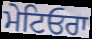
ਮੇਟਿਓਰਾ